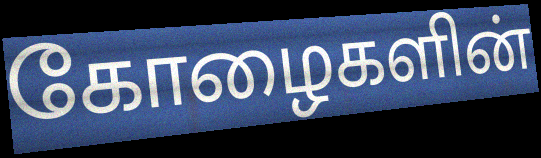
கோழைகளின்